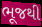
ભૂજથી